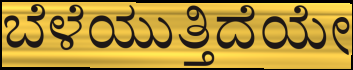
ಬೆಳೆಯುತ್ತಿದೆಯೇ